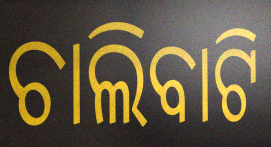
ଚାଲିବାଟି